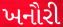
ખનૌરી